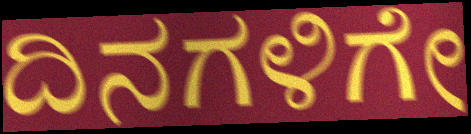
ದಿನಗಳಿಗೇ